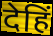
देहिं